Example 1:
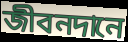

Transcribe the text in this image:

জীবনদানে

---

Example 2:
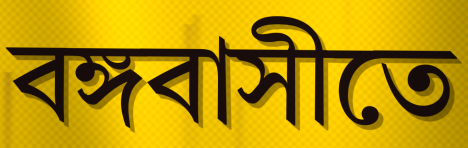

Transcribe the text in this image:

বঙ্গবাসীতে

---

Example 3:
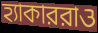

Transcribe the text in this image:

হ্যাকাররাও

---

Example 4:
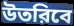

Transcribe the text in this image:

উতরিবে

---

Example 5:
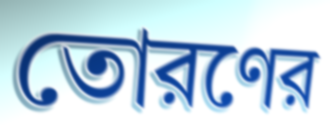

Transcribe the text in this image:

তোরণের